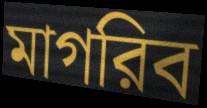
মাগরিব